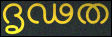
ദൃഢത